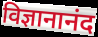
विज्ञानानंद